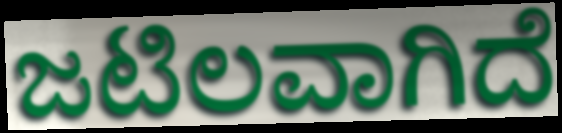
ಜಟಿಲವಾಗಿದೆ